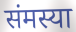
संमस्या